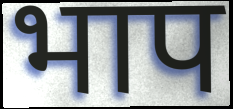
भाप